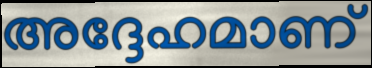
അദ്ദേഹമാണ്